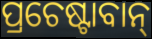
ପ୍ରଚେଷ୍ଟାବାନ୍